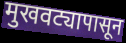
मुखवट्यापासून